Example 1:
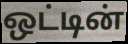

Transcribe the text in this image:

ஒட்டின்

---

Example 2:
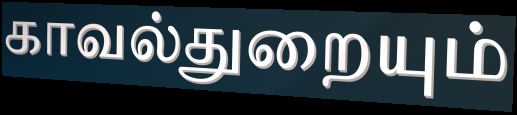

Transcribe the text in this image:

காவல்துறையும்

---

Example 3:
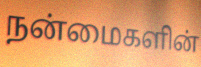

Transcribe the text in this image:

நன்மைகளின்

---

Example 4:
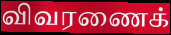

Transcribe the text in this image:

விவரணைக்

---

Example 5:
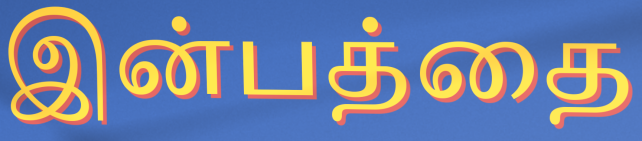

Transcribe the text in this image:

இன்பத்தை